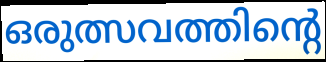
ഒരുത്സവത്തിന്റെ